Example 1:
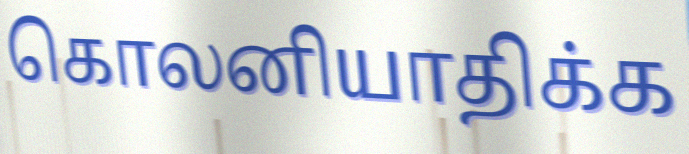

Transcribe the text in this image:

கொலனியாதிக்க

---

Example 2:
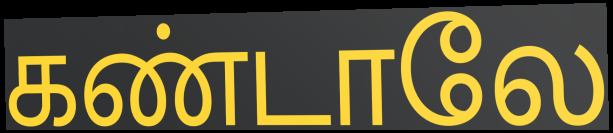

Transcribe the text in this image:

கண்டாலே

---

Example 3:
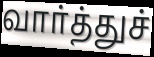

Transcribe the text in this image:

வார்த்துச்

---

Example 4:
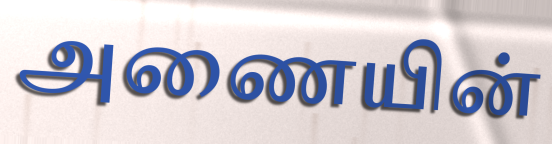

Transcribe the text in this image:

அணையின்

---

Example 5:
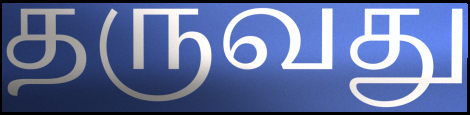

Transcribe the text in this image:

தருவது